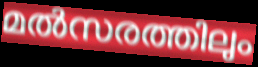
മൽസരത്തിലും